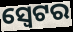
ସ୍ଵେଟର